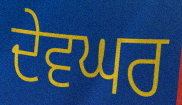
ਦੇਵਘਰ